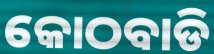
କୋଠବାଡି